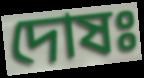
দোষঃ